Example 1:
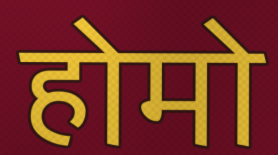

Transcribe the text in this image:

होमो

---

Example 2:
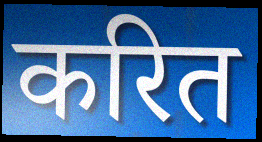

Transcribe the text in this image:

करित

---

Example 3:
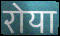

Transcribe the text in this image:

रोया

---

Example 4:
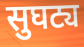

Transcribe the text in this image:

सुघट्य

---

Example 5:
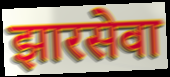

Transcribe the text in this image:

झारसेवा